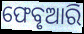
ଫେବୃଆରି